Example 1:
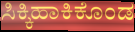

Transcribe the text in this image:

ಸಿಕ್ಕಿಹಾಕಿಕೊಂಡ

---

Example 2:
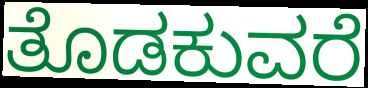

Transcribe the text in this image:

ತೊಡಕುವರೆ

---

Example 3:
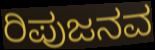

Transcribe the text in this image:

ರಿಪುಜನವ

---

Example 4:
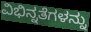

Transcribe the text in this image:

ವಿಭಿನ್ನತೆಗಳನ್ನು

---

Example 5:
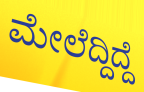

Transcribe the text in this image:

ಮೇಲೆದ್ದಿದ್ದೆ